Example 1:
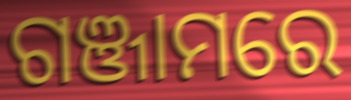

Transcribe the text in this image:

ଗଞ୍ଜାମରେ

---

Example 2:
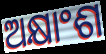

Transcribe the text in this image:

ଅକ୍ଷାଂଶ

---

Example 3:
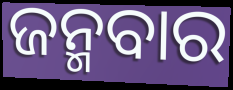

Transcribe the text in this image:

ଜନ୍ମବାର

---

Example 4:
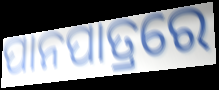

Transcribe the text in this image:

ପାନପାତ୍ରରେ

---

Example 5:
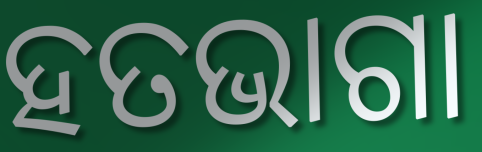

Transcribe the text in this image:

ହତଭାଗା